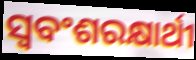
ସ୍ବବଂଶରକ୍ଷାର୍ଥୀ